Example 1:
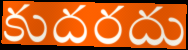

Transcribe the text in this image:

కుదరదు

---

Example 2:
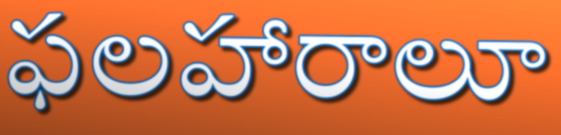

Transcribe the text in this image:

ఫలహారాలూ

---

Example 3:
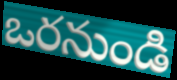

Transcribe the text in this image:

ఒరనుండి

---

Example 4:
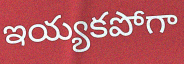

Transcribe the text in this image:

ఇయ్యకపోగా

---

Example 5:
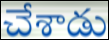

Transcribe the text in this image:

చేశాడు